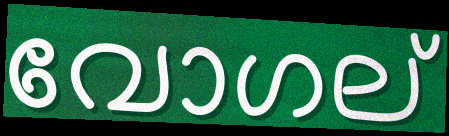
വോഗല്